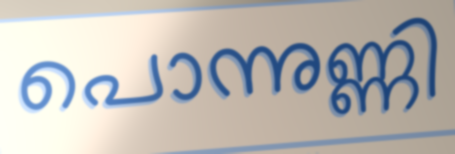
പൊന്നുണ്ണി